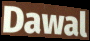
Dawal